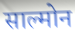
साल्मोन